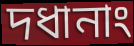
দধানাং